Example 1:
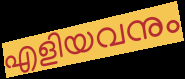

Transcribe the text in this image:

എളിയവനും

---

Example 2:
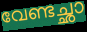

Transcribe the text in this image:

വേണ്ടച്ഛാ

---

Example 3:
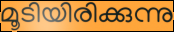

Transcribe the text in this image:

മൂടിയിരിക്കുന്നു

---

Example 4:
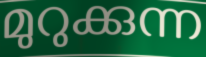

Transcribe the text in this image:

മുറുക്കുന്ന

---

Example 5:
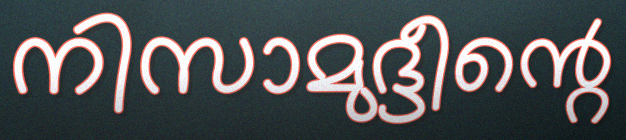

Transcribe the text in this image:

നിസാമുദ്ദീന്റെ